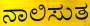
ನಾಲಿಸುತ